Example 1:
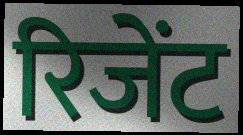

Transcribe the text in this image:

रिजेंट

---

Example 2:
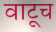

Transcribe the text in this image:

वाटूच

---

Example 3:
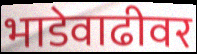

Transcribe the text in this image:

भाडेवाढीवर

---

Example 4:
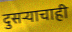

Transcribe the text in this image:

दुसऱ्याचाही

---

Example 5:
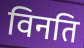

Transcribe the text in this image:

विनति